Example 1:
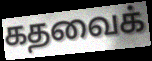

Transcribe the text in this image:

கதவைக்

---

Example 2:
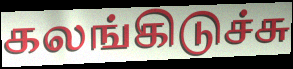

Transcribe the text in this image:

கலங்கிடுச்சு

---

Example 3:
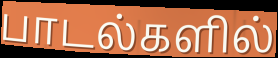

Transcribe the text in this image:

பாடல்களில்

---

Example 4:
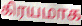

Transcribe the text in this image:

கிரயமாக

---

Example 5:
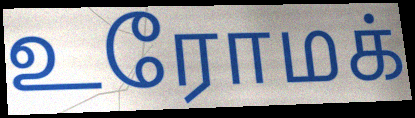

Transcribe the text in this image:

உரோமக்